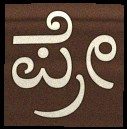
ಪ್ರೇ